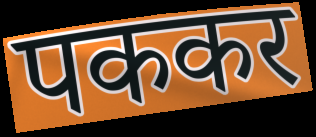
पककर